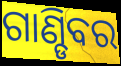
ଗାଣ୍ଡିବର